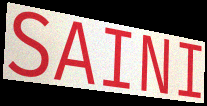
SAINI